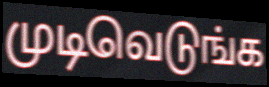
முடிவெடுங்க